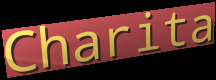
Charita